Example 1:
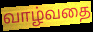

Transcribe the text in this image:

வாழ்வதை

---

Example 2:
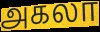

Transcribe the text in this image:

அகலா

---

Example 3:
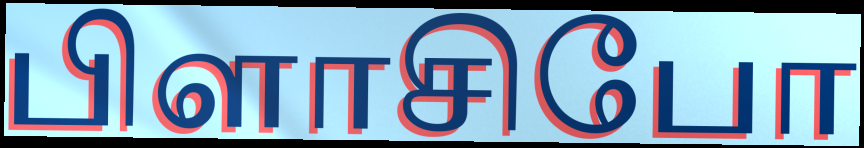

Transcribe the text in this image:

பிளாசிபோ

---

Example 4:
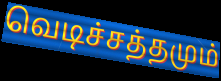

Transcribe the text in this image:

வெடிச்சத்தமும்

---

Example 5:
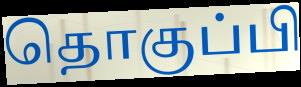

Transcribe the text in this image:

தொகுப்பி